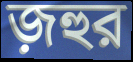
জ়হুর